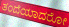
ತಂದೆಯಾದರೋ